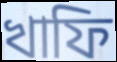
খাফি